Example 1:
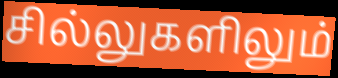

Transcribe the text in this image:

சில்லுகளிலும்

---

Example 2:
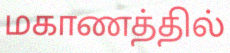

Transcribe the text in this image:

மகாணத்தில்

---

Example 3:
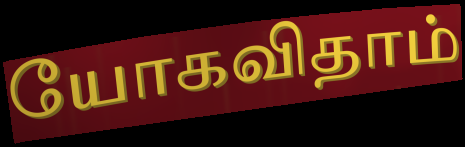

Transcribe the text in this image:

யோகவிதாம்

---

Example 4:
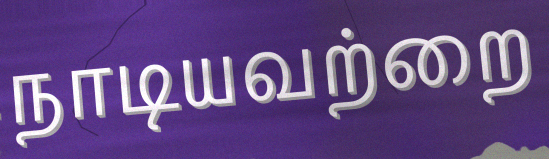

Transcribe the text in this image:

நாடியவற்றை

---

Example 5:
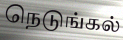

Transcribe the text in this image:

நெடுங்கல்